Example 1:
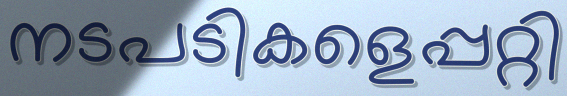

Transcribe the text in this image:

നടപടികളെപ്പറ്റി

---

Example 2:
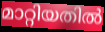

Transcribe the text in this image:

മാറ്റിയതിൽ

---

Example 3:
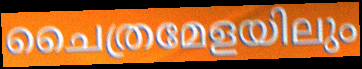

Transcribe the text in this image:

ചൈത്രമേളയിലും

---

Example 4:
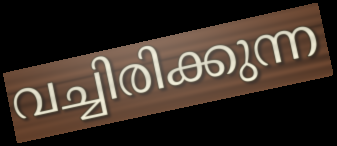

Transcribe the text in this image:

വച്ചിരിക്കുന്ന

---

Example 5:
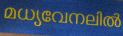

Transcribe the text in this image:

മധ്യവേനലിൽ